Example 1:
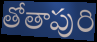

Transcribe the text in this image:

తోతాపురి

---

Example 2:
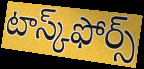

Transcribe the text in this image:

టాస్క్‌ఫోర్స్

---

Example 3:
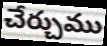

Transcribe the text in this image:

చేర్చుము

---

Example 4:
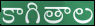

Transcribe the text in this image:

కాగితాల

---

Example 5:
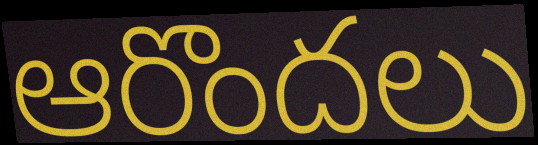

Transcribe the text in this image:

ఆరొందలు